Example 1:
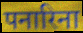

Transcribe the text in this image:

पनारिना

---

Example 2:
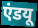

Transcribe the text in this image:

एंडयू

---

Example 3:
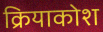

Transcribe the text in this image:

क्रियाकोश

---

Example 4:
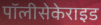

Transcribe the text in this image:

पॉलीसेकेराइड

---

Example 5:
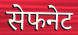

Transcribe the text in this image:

सेफनेट